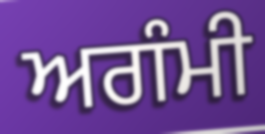
ਅਗੰਮੀ